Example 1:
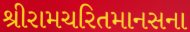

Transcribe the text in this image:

શ્રીરામચરિતમાનસના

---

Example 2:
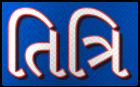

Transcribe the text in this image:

તિત્રિ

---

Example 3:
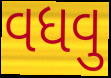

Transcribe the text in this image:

વધવુ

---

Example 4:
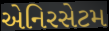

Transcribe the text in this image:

એનિરસેટમ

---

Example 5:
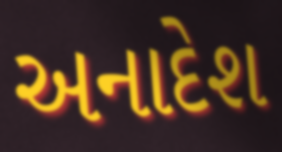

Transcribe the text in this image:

અનાદેશ